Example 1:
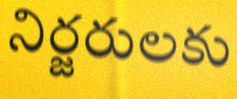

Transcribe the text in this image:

నిర్జరులకు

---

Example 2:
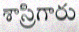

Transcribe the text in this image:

శాస్రిగారు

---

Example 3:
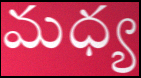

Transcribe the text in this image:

మధ్య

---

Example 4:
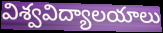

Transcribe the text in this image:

విశ్వవిద్యాలయాలు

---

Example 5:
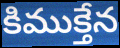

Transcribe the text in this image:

కిముక్తేన